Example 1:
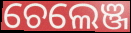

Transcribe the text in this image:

ଚେଲେଞ୍ଜ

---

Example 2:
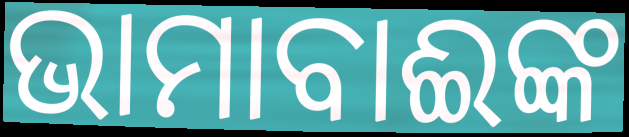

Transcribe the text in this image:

ଭାମାବାଈଙ୍କ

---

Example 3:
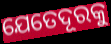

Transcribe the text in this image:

ଯେତେଦୂରକୁ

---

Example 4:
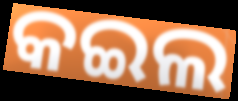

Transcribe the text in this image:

କଇଲ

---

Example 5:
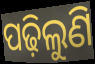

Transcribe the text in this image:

ପଢ଼ିଲୁଣି